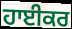
ਹਾਈਕਰ